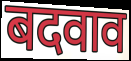
बदवाव